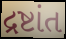
દ્રષ્ટાંત